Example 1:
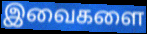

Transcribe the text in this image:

இவைகளை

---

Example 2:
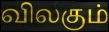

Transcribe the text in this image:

விலகும்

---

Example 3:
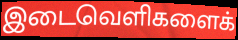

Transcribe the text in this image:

இடைவெளிகளைக்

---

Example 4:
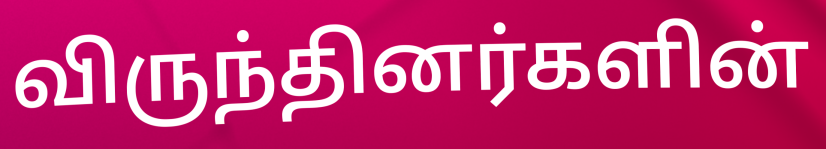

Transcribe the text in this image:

விருந்தினர்களின்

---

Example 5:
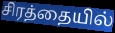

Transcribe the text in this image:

சிரத்தையில்